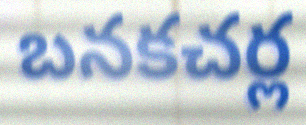
బనకచర్ల